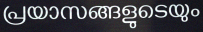
പ്രയാസങ്ങളുടെയും